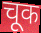
चूक